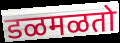
डळमळतो